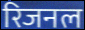
रिजनल